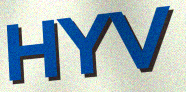
HYV